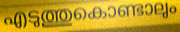
എടുത്തുകൊണ്ടാലും